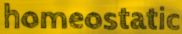
homeostatic